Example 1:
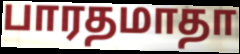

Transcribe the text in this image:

பாரதமாதா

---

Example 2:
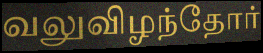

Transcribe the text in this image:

வலுவிழந்தோர்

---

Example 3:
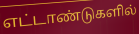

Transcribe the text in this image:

எட்டாண்டுகளில்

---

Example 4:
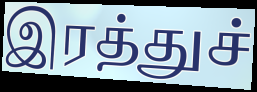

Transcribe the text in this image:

இரத்துச்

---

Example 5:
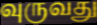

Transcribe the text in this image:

வுருவது